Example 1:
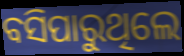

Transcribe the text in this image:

ବସିପାରୁଥିଲେ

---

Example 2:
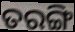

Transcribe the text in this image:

ତରଙ୍ଗି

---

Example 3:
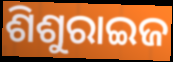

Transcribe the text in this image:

ଶିଶୁରାଇଜ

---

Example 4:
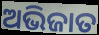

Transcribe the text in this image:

ଅଭିଜାତ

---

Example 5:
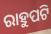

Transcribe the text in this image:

ରାହୁପଟି